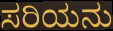
ಸರಿಯನು